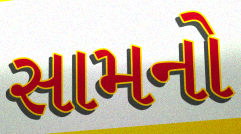
સામનો